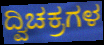
ದ್ವಿಚಕ್ರಗಳ